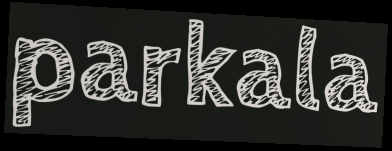
parkala